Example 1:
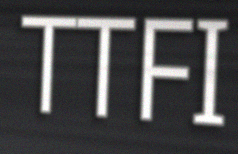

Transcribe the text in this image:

TTFI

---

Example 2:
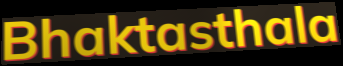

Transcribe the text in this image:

Bhaktasthala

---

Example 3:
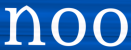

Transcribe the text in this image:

noo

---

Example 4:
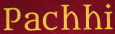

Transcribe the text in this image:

Pachhi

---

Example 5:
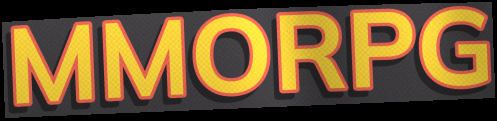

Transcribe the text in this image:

MMORPG